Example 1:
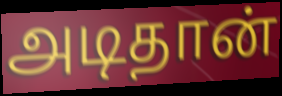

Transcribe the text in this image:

அடிதான்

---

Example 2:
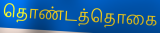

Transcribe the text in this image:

தொண்டத்தொகை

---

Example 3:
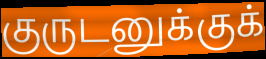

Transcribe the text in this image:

குருடனுக்குக்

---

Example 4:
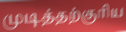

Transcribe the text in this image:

முடித்தற்குரிய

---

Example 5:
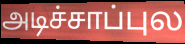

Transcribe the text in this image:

அடிச்சாப்புல